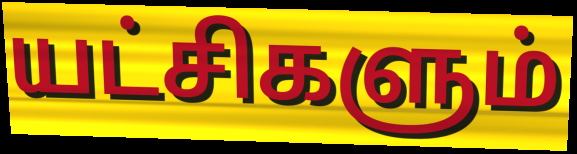
யட்சிகளும்